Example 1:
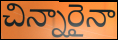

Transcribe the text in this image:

చిన్నారైనా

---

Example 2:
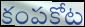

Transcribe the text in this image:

కంపకోట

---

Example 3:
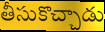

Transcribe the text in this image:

తీసుకొచ్చాడు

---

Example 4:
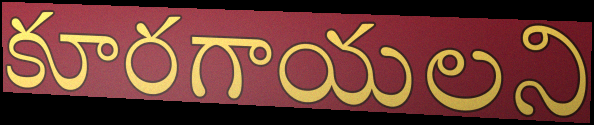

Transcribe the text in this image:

కూరగాయలని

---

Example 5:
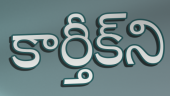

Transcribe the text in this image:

కార్తీక్‌ని